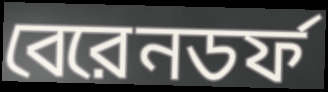
বেরেনডর্ফ